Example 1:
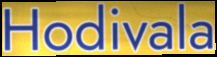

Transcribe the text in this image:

Hodivala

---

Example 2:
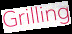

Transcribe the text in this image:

Grilling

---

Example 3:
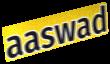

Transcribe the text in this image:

aaswad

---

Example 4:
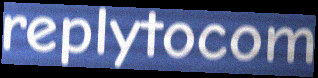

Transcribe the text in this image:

replytocom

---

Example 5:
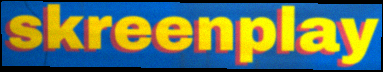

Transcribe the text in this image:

skreenplay